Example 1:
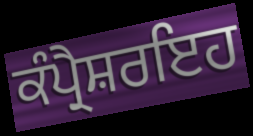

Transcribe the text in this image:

ਕੰਪ੍ਰੈਸ਼ਰਇਹ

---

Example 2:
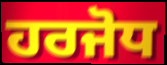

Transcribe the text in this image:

ਹਰਜੋਧ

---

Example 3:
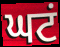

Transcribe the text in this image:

ਘਟਂ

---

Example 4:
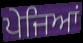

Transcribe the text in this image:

ਪੇਜਿਆਂ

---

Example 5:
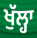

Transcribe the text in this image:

ਖੁੱਲ੍ਹਾ